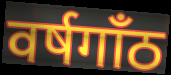
वर्षगाँठ